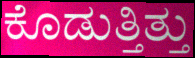
ಕೊಡುತ್ತಿತ್ತು